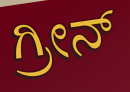
ಗ್ರೀನ್